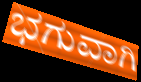
ಭಗುವಾಗಿ